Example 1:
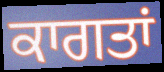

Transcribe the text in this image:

ਕਾਗਤਾਂ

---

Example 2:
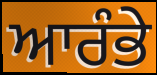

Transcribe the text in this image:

ਆਰੰਭੇ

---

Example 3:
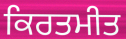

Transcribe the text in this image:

ਕਿਰਤਮੀਤ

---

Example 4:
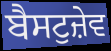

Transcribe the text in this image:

ਬੈਸਟੁਜ਼ੇਵ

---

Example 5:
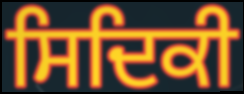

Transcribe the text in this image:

ਸਿਦਿਕੀ